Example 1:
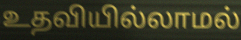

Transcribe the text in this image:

உதவியில்லாமல்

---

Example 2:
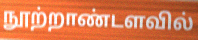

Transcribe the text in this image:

நூற்றாண்டளவில்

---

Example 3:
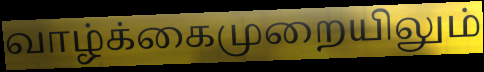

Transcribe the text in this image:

வாழ்க்கைமுறையிலும்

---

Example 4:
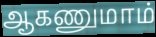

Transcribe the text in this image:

ஆகணுமாம்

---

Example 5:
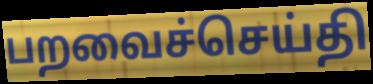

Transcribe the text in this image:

பறவைச்செய்தி